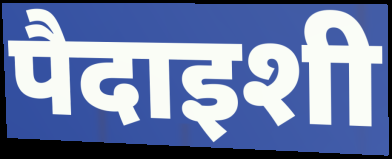
पैदाइशी